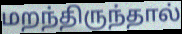
மறந்திருந்தால்